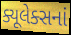
ક્યૂલેક્સનાં